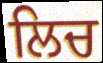
ਲਿਚ